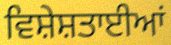
ਵਿਸ਼ੇਸ਼ਤਾਈਆਂ